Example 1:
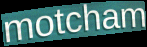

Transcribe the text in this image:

motcham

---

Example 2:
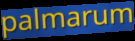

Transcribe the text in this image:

palmarum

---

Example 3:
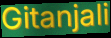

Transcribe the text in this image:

Gitanjali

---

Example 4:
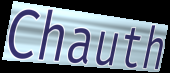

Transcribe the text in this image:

Chauth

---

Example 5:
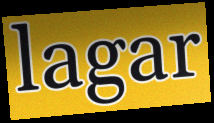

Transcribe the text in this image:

lagar